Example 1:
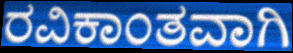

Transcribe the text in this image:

ರವಿಕಾಂತವಾಗಿ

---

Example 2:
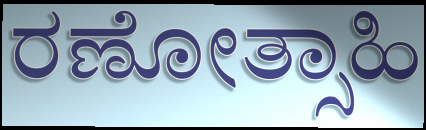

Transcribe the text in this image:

ರಣೋತ್ಸಾಹಿ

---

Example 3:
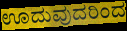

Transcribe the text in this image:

ಊದುವುದರಿಂದ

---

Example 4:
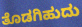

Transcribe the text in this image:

ತೊಡಗಿಹುದು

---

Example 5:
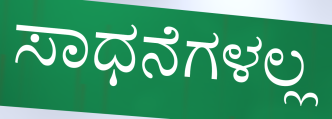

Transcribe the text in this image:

ಸಾಧನೆಗಳಲ್ಲ